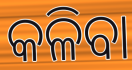
କଳିବା